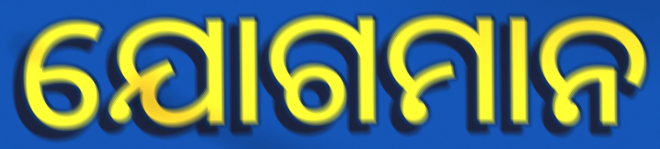
ଯୋଗମାନ